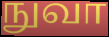
நுவா